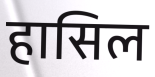
हासिल